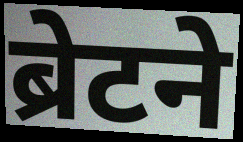
ब्रेटने